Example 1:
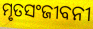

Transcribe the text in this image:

ମୃତସଂଜୀବନୀ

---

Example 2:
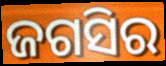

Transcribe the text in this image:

ଜଗସିର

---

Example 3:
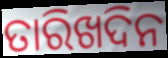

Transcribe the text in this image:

ତାରିଖଦିନ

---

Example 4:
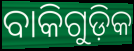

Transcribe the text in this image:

ବାକିଗୁଡ଼ିକ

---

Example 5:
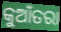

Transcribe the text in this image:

କୁଆଁତରା